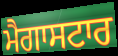
ਮੈਗਾਸਟਾਰ